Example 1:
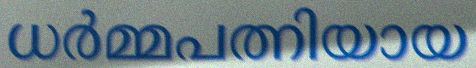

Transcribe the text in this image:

ധർമ്മപത്നിയായ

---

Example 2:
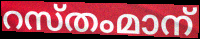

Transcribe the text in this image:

റസ്തംമാന്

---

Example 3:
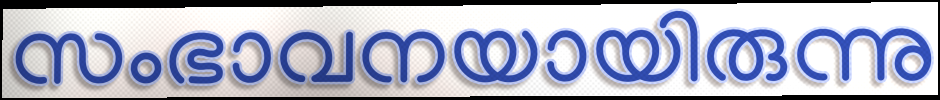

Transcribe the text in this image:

സംഭാവനയായിരുന്നു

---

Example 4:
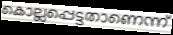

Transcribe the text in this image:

കൊല്ലപ്പെട്ടതാണെന്ന്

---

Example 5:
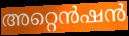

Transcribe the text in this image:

അറ്റെൻഷൻ